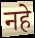
नहे